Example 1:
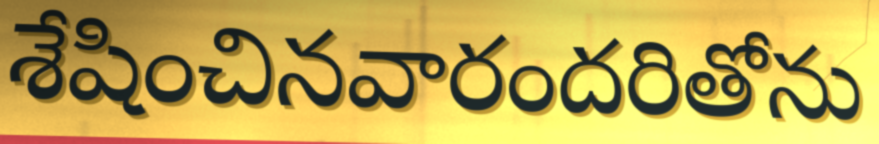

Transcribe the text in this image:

శేషించినవారందరితోను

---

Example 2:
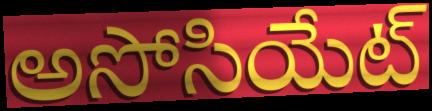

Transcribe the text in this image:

అసోసియేట్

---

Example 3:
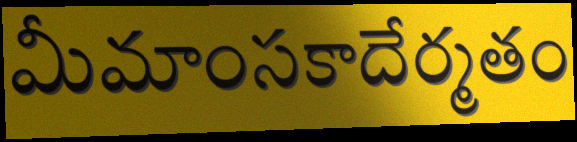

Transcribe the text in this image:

మీమాంసకాదేర్మతం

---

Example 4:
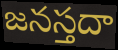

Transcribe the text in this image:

జనస్తదా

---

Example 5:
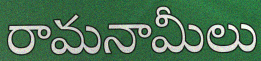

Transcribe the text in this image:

రామనామీలు